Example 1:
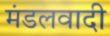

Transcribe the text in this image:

मंडलवादी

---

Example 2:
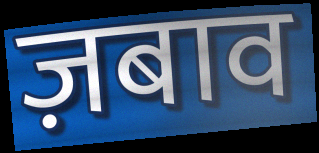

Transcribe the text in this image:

ज़बाव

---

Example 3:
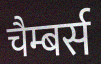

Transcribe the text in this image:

चैम्‍बर्स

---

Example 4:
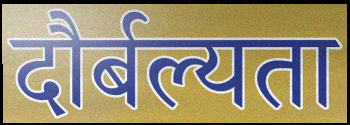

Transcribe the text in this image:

दौर्बल्यता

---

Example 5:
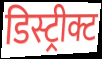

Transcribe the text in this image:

डिस्ट्रीक्ट